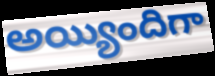
అయ్యిందిగా